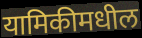
यामिकीमधील